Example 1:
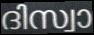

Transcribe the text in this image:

ദിസ്വാ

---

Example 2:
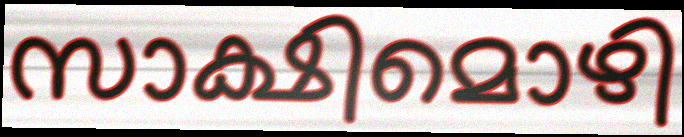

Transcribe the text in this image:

സാക്ഷിമൊഴി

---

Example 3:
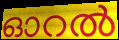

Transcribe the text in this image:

ഓറൽ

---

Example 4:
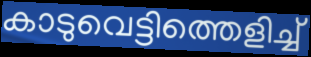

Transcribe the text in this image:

കാടുവെട്ടിത്തെളിച്ച്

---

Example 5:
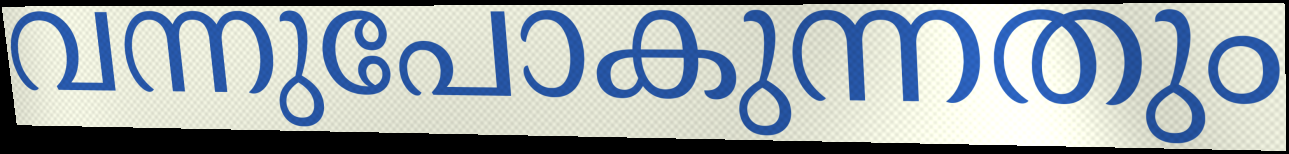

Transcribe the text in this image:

വന്നുപോകുന്നതും